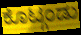
ಕೊಟ್ಗಂಡು